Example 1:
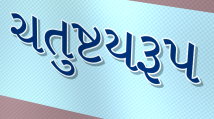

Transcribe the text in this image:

ચતુષ્ટયરૂપ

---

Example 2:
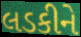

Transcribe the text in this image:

લડકીને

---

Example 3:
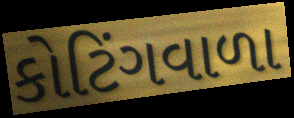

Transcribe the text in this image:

કોટિંગવાળા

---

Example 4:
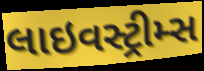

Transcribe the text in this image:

લાઇવસ્ટ્રીમ્સ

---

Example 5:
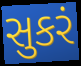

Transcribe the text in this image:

સુકરં